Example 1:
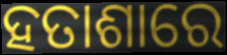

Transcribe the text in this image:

ହତାଶାରେ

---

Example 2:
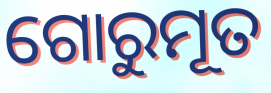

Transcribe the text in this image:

ଗୋରୁମୂତ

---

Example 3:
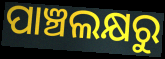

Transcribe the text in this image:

ପାଞ୍ଚଲକ୍ଷରୁ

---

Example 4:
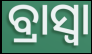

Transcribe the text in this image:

ବ୍ରାସ୍ବା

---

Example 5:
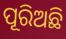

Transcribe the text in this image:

ପୂରିଅଛି